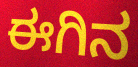
ಈಗಿನ